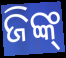
ଜିଙ୍କ୍